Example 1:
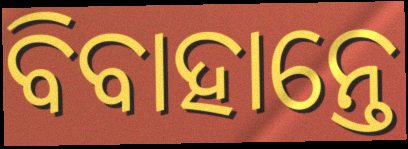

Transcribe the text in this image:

ବିବାହାନ୍ତେ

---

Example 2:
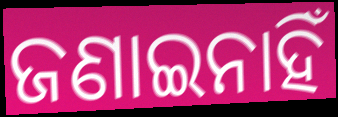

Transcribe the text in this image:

ଜଣାଇନାହିଁ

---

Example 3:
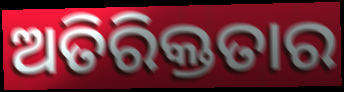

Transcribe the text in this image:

ଅତିରିକ୍ତତାର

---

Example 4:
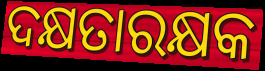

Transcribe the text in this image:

ଦକ୍ଷତାରକ୍ଷକ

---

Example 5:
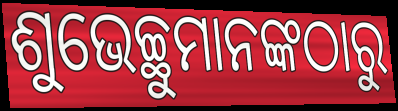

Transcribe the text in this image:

ଶୁଭେଚ୍ଛୁମାନଙ୍କଠାରୁ